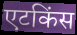
एटकिंस